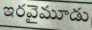
ఇరవైమూడు